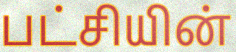
பட்சியின்